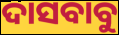
ଦାସବାବୁ